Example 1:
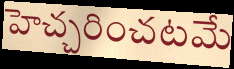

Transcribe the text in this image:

హెచ్చరించటమే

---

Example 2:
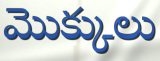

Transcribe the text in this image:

మొక్కులు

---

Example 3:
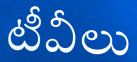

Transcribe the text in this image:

టీవీలు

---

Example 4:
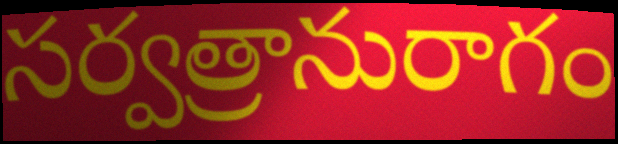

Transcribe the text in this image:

సర్వత్రానురాగం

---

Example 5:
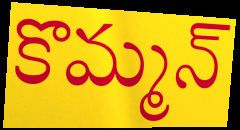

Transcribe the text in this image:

కొమ్మన్